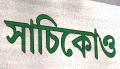
সাচিকোও